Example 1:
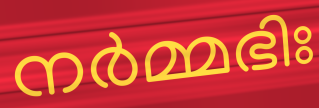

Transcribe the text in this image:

നർമ്മഭിഃ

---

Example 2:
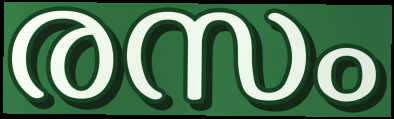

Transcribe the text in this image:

രസം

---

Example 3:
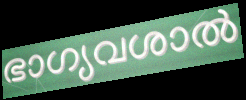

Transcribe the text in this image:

ഭാഗ്യവശാൽ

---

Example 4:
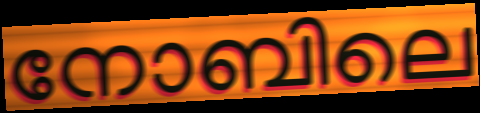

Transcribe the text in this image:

നോബിലെ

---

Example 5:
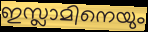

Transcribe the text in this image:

ഇസ്ലാമിനെയും